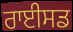
ਰਾਈਸਡ